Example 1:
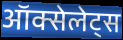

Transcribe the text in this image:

ऑक्सेलेट्स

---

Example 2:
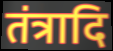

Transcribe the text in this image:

तंत्रादि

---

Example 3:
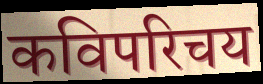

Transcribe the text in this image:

कविपरिचय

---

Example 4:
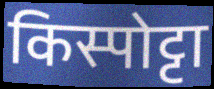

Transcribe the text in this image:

किस्पोट्टा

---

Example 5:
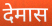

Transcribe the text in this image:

देमास